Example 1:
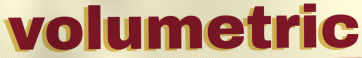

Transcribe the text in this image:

volumetric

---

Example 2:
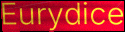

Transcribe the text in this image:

Eurydice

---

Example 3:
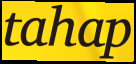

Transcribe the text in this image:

tahap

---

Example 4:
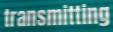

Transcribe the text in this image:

transmitting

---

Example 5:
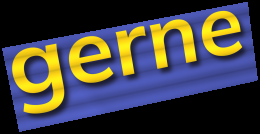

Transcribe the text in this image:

gerne